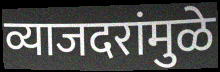
व्याजदरांमुळे